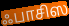
ஃபாசிஸ